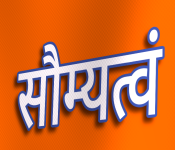
सौम्यत्वं